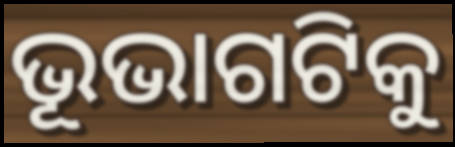
ଭୂଭାଗଟିକୁ